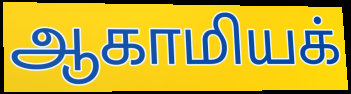
ஆகாமியக்